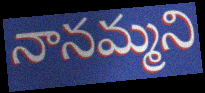
నానమ్మని